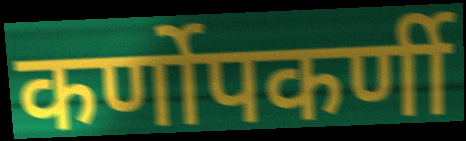
कर्णोपकर्णी